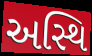
અસ્થિ